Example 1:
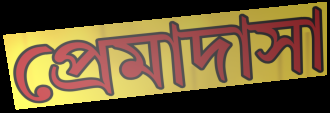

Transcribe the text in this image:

প্রেমাদাসা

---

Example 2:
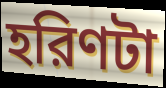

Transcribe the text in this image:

হরিণটা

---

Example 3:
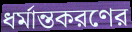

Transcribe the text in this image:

ধর্মান্তকরণের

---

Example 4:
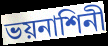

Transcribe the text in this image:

ভয়নাশিনী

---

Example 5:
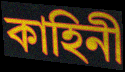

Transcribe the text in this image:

কাহিনী